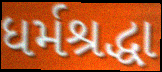
ધર્મશ્રદ્ધા